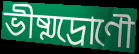
ভীষ্মদ্রোণৌ